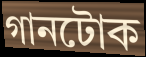
গানটোক